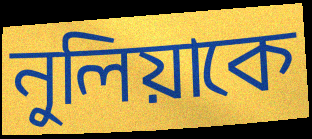
নুলিয়াকে